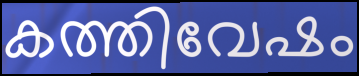
കത്തിവേഷം